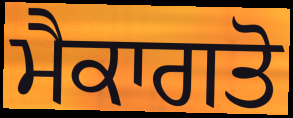
ਮੈਕਾਗਤੋ